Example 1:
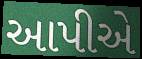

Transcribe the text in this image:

આપીએ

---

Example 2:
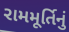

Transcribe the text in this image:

રામમૂર્તિનું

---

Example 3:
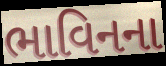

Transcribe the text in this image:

ભાવિનના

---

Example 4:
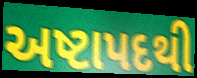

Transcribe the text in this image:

અષ્ટાપદથી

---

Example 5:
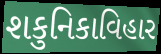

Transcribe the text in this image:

શકુનિકાવિહાર